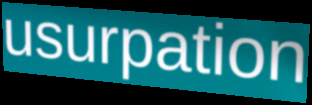
usurpation